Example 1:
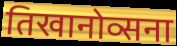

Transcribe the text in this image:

तिखानोव्सना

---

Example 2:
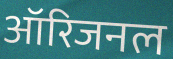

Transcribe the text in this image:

ऑरिजनल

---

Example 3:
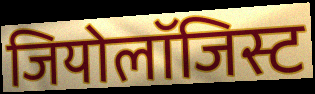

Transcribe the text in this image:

जियोलॉजिस्ट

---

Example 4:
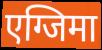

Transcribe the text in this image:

एग्जिमा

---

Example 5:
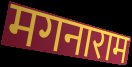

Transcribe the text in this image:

मगनाराम